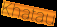
Khatau